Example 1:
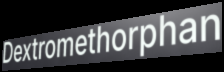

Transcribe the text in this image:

Dextromethorphan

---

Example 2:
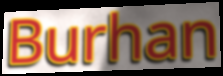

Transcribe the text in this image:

Burhan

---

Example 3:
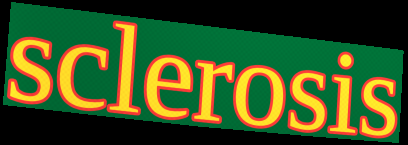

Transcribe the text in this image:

sclerosis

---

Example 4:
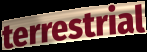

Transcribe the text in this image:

terrestrial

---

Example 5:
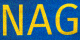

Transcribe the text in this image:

NAG